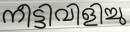
നീട്ടിവിളിച്ചു